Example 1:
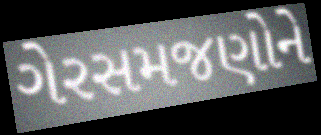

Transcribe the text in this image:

ગેરસમજણોને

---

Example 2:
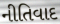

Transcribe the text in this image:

નીતિવાદ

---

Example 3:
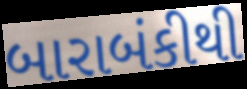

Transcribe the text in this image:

બારાબંકીથી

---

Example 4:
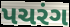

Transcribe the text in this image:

પચરંગ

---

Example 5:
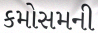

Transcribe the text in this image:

કમોસમની